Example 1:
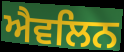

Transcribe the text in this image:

ਐਵਲਿਨ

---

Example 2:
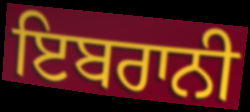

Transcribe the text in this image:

ਇਬਰਾਨੀ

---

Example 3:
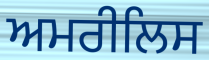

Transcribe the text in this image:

ਅਮਰੀਲਿਸ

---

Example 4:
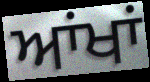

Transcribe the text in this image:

ਆਂਖਾਂ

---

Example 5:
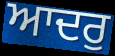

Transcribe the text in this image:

ਆਦਰੁ